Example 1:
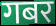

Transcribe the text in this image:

गबर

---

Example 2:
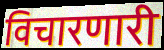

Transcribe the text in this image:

विचारणारी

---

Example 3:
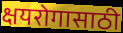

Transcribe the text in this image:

क्षयरोगासाठी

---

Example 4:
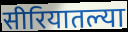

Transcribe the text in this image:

सीरियातल्या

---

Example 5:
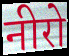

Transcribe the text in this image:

नीरो